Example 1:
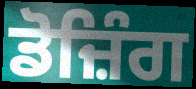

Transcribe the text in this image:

ਡੋਜ਼ਿੰਗ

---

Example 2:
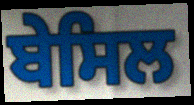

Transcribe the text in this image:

ਬੇਸਿਲ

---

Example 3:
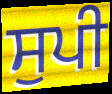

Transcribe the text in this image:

ਸੁਪੀ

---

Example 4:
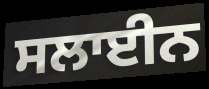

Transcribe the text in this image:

ਸਲਾਈਨ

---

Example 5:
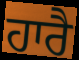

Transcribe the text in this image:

ਹਾਰੈ